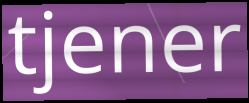
tjener